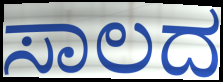
ಸಾಲದ